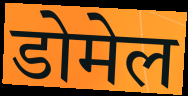
डोमेल